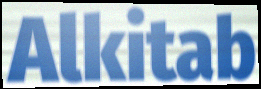
Alkitab